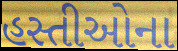
હસ્તીઓના